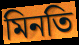
মিনতি